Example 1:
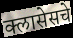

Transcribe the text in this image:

क्लासेसचे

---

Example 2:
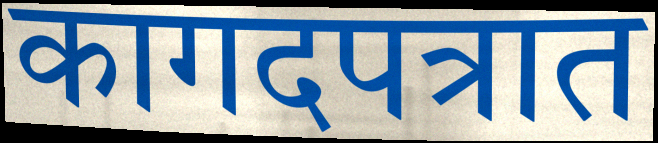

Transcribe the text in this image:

कागदपत्रात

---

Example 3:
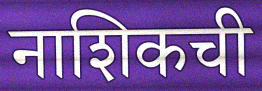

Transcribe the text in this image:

नाशिकची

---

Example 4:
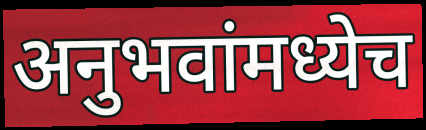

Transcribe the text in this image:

अनुभवांमध्येच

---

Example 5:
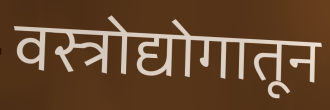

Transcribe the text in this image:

वस्त्रोद्योगातून